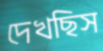
দেখছিস